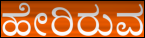
ಹೇರಿರುವ